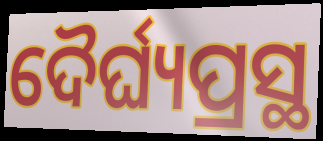
ଦୈର୍ଘ୍ୟପ୍ରସ୍ଥ